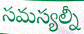
సమస్యల్నీ